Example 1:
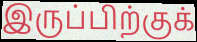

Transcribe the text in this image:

இருப்பிற்குக்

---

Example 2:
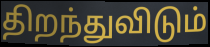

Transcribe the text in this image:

திறந்துவிடும்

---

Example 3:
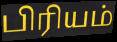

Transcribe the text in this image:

பிரியம்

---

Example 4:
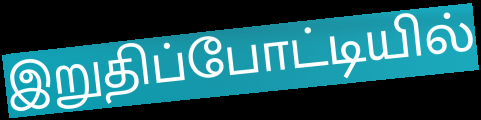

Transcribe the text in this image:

இறுதிப்போட்டியில்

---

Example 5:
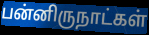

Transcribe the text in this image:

பன்னிருநாட்கள்